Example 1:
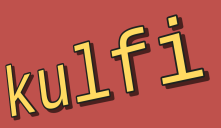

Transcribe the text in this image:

kulfi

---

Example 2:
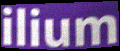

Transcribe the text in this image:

ilium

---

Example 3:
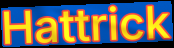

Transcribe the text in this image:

Hattrick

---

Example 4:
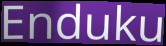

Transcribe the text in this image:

Enduku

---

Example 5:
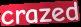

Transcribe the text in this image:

crazed